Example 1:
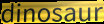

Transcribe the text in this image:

dinosaur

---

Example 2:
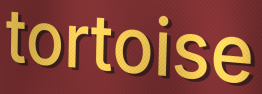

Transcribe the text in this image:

tortoise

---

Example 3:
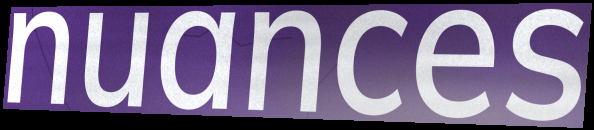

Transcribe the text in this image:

nuances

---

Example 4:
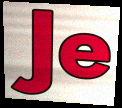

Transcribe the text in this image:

Je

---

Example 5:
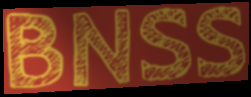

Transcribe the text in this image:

BNSS